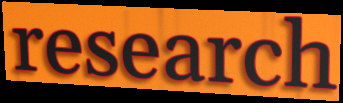
research